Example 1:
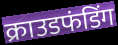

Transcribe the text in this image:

क्राउडफंडिंग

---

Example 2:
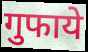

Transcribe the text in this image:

गुफाये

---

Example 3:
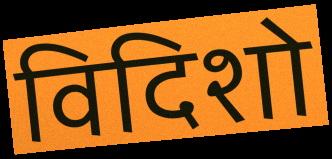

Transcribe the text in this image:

विदिशो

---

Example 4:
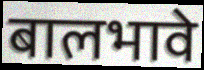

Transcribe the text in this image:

बालभावे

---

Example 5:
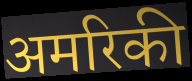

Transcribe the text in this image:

अमरिकी